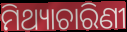
ମିଥ୍ୟାଚାରିଣୀ